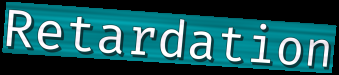
Retardation